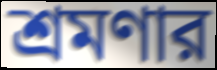
শ্রমণার